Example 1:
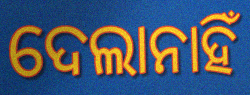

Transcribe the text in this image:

ଦେଲାନାହିଁ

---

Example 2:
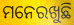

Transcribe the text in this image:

ମନେରଖୁଛି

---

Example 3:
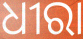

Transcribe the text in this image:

ଧୀରା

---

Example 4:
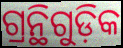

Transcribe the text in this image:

ଗ୍ରନ୍ଥିଗୁଡ଼ିକ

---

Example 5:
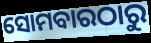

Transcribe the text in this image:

ସୋମବାରଠାରୁ